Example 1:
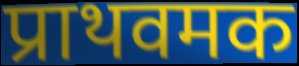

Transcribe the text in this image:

प्राथवमक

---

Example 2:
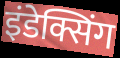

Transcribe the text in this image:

इंडेक्सिंग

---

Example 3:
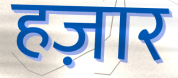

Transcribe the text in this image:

हज़ार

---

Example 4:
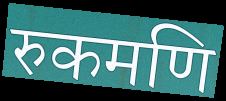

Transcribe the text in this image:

रुकमणि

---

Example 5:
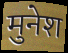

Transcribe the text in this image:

मुनेश